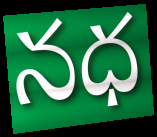
నధ